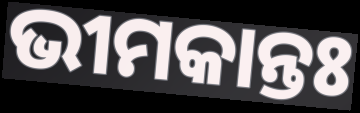
ଭୀମକାନ୍ତଃ